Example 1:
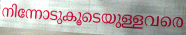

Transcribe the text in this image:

നിന്നോടുകൂടെയുള്ളവരെ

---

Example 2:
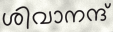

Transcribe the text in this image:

ശിവാനന്ദ്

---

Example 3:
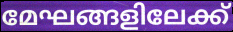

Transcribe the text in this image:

മേഘങ്ങളിലേക്ക്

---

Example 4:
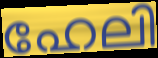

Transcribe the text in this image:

ഹേലി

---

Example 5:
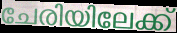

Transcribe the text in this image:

ചേരിയിലേക്ക്